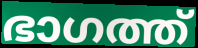
ഭാഗത്ത്